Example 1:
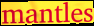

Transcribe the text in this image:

mantles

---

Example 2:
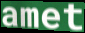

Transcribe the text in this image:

amet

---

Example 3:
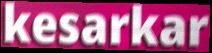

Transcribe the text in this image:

kesarkar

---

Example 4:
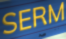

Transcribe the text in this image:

SERM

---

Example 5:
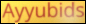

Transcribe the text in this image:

Ayyubids